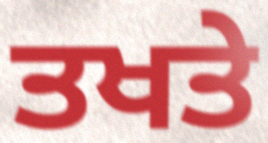
ਤਖਤੇ